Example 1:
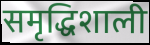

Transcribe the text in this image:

समृद्धिशाली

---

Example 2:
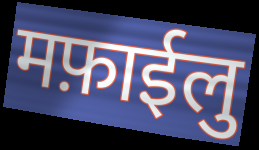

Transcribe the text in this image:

मफ़ाईलु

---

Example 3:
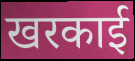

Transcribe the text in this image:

खरकाई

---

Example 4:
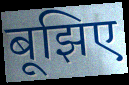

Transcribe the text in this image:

बूझिए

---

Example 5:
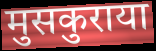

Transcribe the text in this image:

मुसकुराया